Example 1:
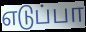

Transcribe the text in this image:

எடுப்பா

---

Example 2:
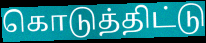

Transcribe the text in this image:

கொடுத்திட்டு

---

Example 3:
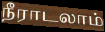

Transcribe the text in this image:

நீராடலாம்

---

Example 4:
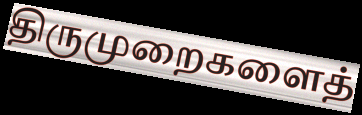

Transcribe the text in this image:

திருமுறைகளைத்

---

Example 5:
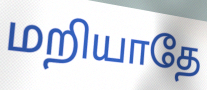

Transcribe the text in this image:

மறியாதே